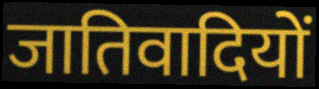
जातिवादियों